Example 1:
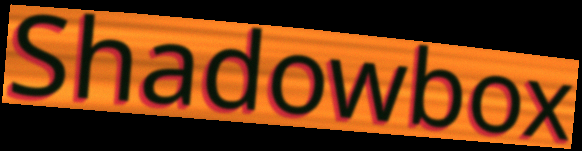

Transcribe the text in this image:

Shadowbox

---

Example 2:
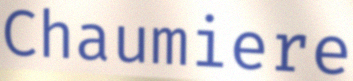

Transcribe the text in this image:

Chaumiere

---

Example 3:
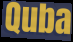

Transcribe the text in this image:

Quba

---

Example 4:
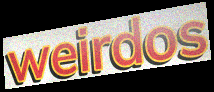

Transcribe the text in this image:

weirdos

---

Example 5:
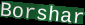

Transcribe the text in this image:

Borshar